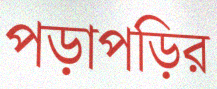
পড়াপড়ির